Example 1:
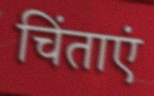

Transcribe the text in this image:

चिंताएं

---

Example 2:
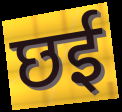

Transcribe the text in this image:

छई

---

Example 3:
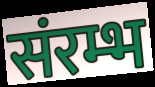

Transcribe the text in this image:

संरम्भ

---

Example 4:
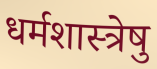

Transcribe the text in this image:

धर्मशास्त्रेषु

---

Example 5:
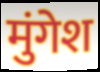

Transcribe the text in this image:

मुंगेश